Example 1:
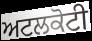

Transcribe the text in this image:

ਅਟਲਕੋਟੀ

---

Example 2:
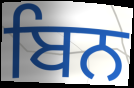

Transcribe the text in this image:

ਬਿਨ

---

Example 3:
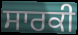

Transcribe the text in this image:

ਸਾਰਕੀ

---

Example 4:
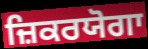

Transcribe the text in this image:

ਜ਼ਿਕਰਯੋਗਾ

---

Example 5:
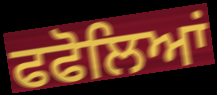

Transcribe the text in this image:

ਫਫੋਲਿਆਂ